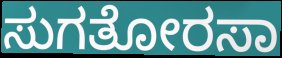
ಸುಗತೋರಸಾ